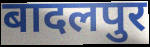
बादलपुर